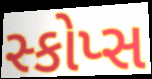
સ્કોપ્સ